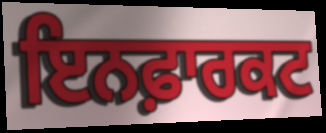
ਇਨਫ਼ਾਰਕਟ